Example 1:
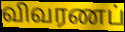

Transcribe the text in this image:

விவரணப்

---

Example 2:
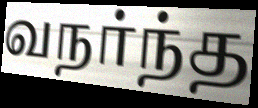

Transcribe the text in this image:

வநர்ந்த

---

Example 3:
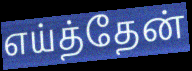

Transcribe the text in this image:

எய்த்தேன்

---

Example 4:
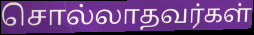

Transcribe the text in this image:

சொல்லாதவர்கள்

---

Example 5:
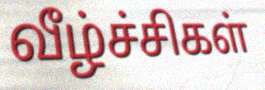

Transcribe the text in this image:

வீழ்ச்சிகள்